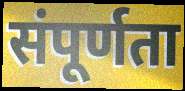
संपूर्णता